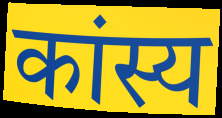
कांस्य